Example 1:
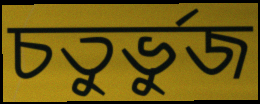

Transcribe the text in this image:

চতুর্ভুজ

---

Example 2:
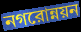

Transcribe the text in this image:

নগরোন্নয়ন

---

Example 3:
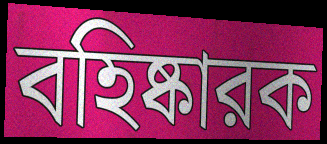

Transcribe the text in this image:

বহিষ্কারক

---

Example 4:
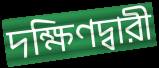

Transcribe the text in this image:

দক্ষিণদ্বারী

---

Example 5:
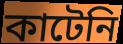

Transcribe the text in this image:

কাটেনি